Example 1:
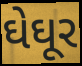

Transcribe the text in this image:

ઘેઘૂર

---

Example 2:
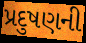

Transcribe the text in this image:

પ્રદુષણની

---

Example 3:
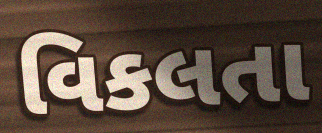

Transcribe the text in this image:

વિકલતા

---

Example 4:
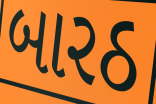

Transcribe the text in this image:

બારઠ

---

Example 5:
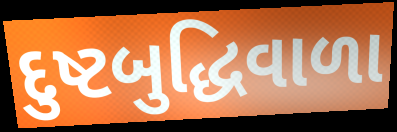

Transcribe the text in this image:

દુષ્ટબુદ્ધિવાળા